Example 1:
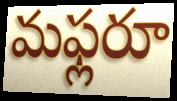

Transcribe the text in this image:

మఫ్లరూ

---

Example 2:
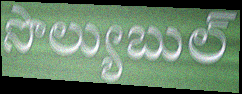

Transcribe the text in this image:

సొల్యుబుల్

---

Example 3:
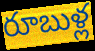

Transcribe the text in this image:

రూబుళ్ల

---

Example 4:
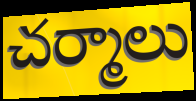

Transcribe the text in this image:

చర్మాలు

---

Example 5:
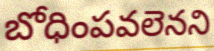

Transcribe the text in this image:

బోధింపవలెనని